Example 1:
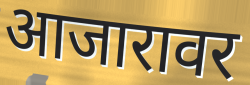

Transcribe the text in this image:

आजारावर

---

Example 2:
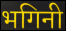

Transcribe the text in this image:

भगिनी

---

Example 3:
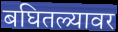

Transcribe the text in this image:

बघितल्यावर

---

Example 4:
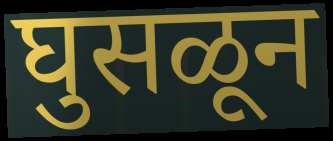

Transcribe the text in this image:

घुसळून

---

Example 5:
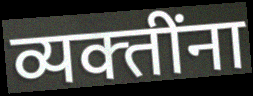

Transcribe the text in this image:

व्यक्‍तींना